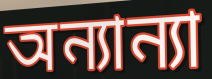
অন্যান্যা